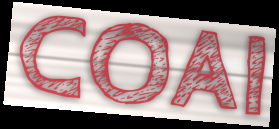
COAI